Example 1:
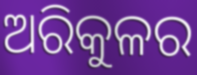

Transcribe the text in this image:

ଅରିକୁଳର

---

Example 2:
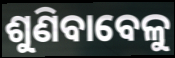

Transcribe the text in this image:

ଶୁଣିବାବେଳୁ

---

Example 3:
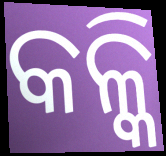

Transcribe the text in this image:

କଳ୍କି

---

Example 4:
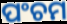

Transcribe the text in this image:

ପଂଚମ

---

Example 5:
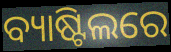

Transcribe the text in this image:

ବ୍ୟାଷ୍ଟିଲରେ